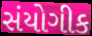
સંયોગીક